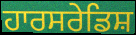
ਹਾਰਸਰੇਡਿਸ਼